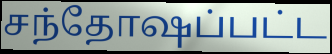
சந்தோஷப்பட்ட